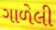
ગાળેલી